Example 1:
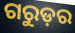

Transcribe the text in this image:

ଗରୁଡ଼ର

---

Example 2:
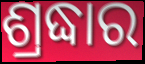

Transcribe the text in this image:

ଶ୍ରଦ୍ଧାର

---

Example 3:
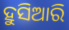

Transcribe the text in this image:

ହୁସିଆରି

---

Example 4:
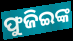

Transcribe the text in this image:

ଫୁଜିଇଙ୍କ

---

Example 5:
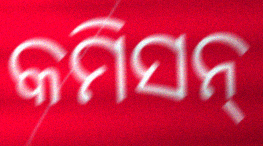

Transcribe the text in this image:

କମିସନ୍